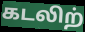
கடலிற்